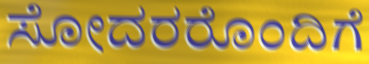
ಸೋದರರೊಂದಿಗೆ